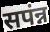
सपंन्न